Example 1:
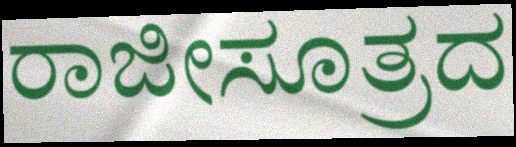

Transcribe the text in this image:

ರಾಜೀಸೂತ್ರದ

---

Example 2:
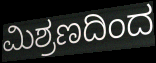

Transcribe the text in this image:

ಮಿಶ್ರಣದಿಂದ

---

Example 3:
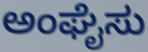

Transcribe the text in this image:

ಅಂಘೈಸು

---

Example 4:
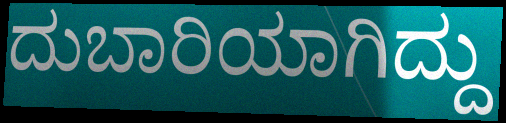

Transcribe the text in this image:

ದುಬಾರಿಯಾಗಿದ್ದು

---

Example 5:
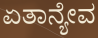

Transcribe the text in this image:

ಏತಾನ್ಯೇವ